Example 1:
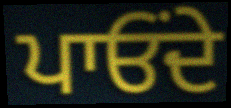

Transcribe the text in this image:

ਪਾਓਂਦੇ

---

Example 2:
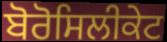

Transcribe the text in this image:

ਬੋਰੋਸਿਲੀਕੇਟ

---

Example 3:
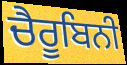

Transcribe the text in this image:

ਚੈਰੂਬਿਨੀ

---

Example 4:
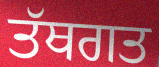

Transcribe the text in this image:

ਤੱਥਗਤ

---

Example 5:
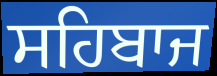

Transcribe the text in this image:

ਸਹਿਬਾਜ